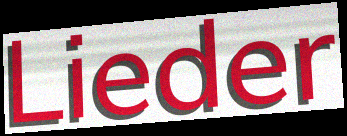
Lieder